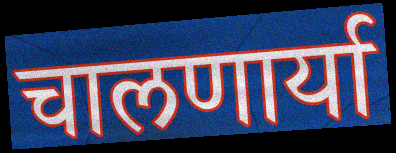
चालणार्या